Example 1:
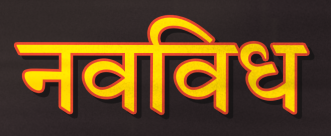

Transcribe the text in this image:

नवविध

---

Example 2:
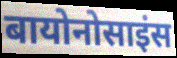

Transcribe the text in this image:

बायोनोसाइंस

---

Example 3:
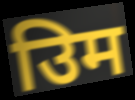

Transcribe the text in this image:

उिम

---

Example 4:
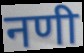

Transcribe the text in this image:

नणी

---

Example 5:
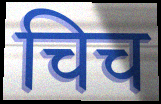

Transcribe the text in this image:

चिच